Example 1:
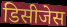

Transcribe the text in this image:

डिसीजेस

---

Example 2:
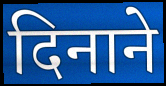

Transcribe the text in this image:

दिनाने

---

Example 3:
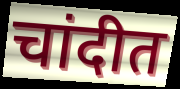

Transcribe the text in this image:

चांदीत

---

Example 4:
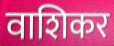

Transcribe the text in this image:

वाशिकर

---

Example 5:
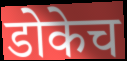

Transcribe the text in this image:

डोकेच